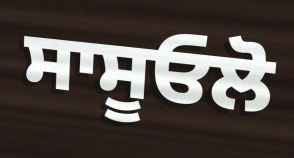
ਸਾਸੂਓਲੋ